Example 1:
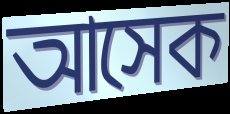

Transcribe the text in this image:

আসেক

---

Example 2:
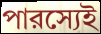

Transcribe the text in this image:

পারস্যেই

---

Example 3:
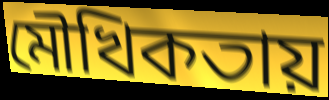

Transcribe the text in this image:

মৌখিকতায়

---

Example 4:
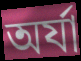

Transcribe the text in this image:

অর্যা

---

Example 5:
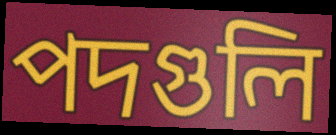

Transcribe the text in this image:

পদগুলি